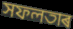
সফলতাৰ